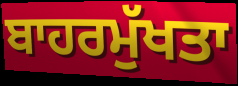
ਬਾਹਰਮੁੱਖਤਾ